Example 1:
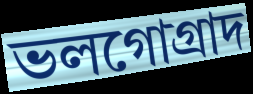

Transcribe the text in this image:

ভলগোগ্রাদ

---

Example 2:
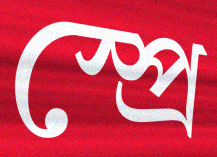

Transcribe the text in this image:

স্প্রে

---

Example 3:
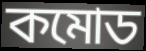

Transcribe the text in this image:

কমোড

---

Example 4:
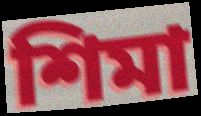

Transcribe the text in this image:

শিমা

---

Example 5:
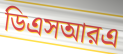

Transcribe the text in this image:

ডিএসআরএ